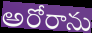
అరోరాను